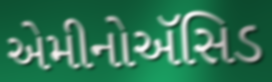
એમીનોઍસિડ